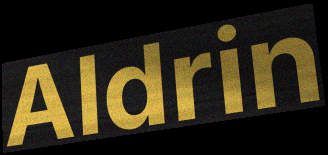
Aldrin